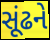
સૂંઢને